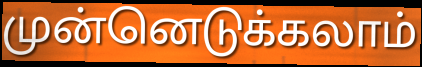
முன்னெடுக்கலாம்